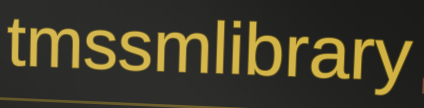
tmssmlibrary